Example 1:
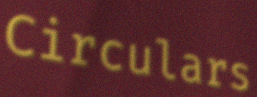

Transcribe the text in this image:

Circulars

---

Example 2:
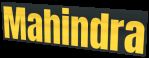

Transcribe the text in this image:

Mahindra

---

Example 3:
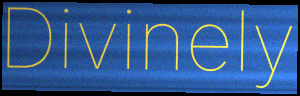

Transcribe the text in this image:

Divinely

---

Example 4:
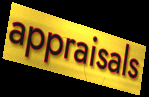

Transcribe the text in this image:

appraisals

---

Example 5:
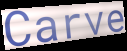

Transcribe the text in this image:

Carve